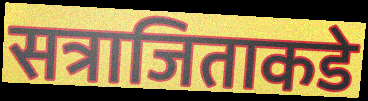
सत्राजिताकडे